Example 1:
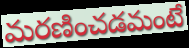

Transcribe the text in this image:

మరణించడమంటే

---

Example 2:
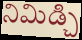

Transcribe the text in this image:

నిమిడ్చి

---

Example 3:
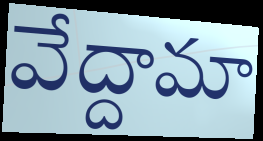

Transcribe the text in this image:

వేద్దామా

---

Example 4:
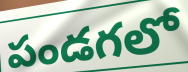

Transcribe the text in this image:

పండగలో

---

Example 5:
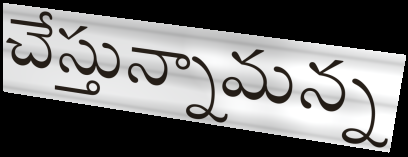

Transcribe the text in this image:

చేస్తున్నామన్న